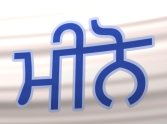
ਮੀਨੋ